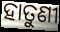
ହାତୁଣୀ